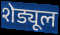
शेड्यूल